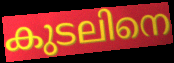
കുടലിനെ